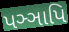
પઞ્ઞાપિ